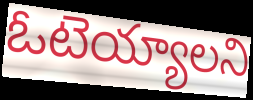
ఓటెయ్యాలని